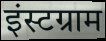
इंस्टग्राम